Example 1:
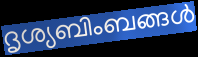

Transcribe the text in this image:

ദൃശ്യബിംബങ്ങൾ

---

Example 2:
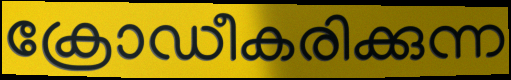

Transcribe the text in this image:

ക്രോഡീകരിക്കുന്ന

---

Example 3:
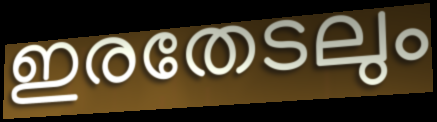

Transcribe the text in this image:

ഇരതേടലും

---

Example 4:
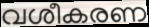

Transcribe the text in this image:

വശീകരണ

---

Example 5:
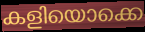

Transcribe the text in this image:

കളിയൊക്കെ